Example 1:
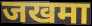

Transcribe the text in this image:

जखमा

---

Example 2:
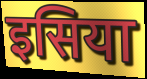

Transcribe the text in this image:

इसिया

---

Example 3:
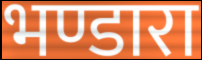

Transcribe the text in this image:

भण्डारा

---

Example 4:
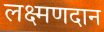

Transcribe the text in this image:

लक्ष्मणदान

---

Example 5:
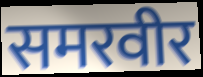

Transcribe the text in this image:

समरवीर